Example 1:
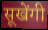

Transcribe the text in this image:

सूखेंगी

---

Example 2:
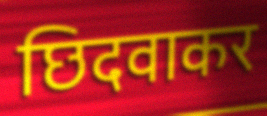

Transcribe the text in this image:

छिदवाकर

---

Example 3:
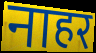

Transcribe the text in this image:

नाहर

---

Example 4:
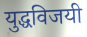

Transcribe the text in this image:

युद्धविजयी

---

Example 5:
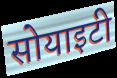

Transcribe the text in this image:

सोयाइटी